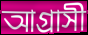
আগ্রাসী